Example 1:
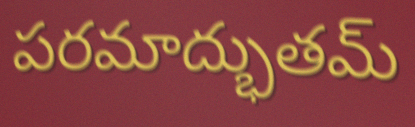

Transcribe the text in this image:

పరమాద్భుతమ్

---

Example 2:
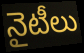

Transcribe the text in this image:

నైటీలు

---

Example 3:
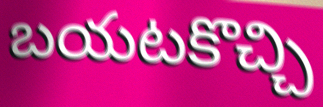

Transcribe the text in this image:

బయటకొచ్చి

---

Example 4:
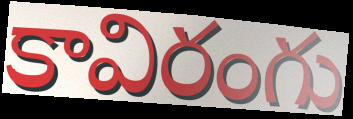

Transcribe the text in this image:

కావిరంగు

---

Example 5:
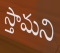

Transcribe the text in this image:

స్తామని